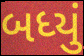
બધ્યું